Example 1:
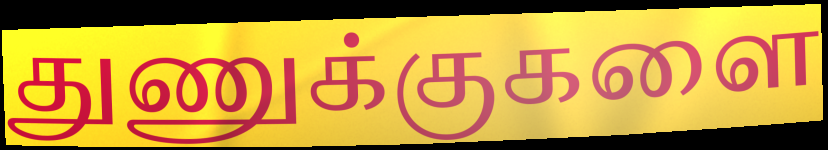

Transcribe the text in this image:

துணுக்குகளை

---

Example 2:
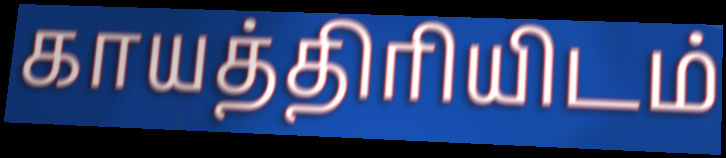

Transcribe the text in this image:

காயத்திரியிடம்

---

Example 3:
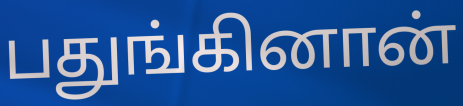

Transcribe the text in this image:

பதுங்கினான்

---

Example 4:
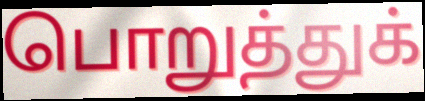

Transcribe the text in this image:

பொறுத்துக்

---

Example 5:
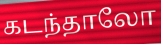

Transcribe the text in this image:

கடந்தாலோ